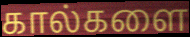
கால்களை